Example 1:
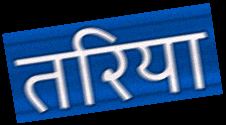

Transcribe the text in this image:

तरिया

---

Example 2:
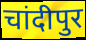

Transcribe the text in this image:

चांदीपुर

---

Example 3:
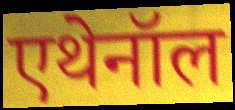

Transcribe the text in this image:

एथेनॉल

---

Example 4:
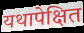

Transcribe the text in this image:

यथापेक्षित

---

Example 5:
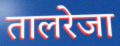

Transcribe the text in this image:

तालरेजा